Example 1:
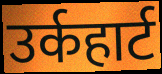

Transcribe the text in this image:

उर्कहार्ट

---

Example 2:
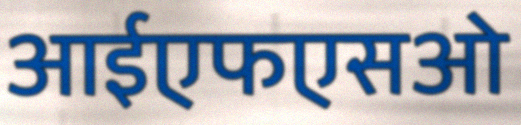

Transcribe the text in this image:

आईएफएसओ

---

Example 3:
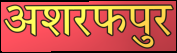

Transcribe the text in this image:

अशरफपुर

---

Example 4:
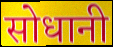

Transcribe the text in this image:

सोधानी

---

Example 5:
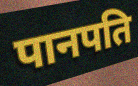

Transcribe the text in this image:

पानपति